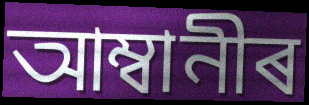
আম্বানীৰ